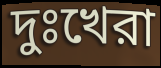
দুঃখেরা